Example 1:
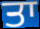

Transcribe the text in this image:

ਤਾ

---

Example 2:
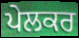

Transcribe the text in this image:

ਪੇਲਕਰ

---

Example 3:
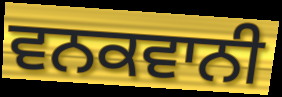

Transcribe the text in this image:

ਵਨਕਵਾਨੀ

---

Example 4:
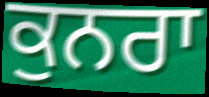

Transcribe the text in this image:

ਕੁਨਰਾ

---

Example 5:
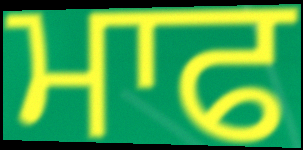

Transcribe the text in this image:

ਮਾਫ